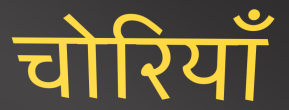
चोरियाँ